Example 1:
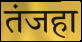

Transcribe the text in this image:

तंजहा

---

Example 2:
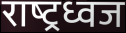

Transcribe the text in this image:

राष्ट्रध्वज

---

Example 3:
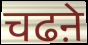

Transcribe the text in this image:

चढऩे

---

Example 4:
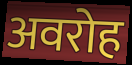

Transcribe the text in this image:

अवरोह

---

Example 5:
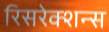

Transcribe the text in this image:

रिसरेक्शन्स